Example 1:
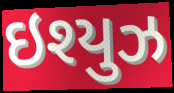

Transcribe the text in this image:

ઇશ્યુઝ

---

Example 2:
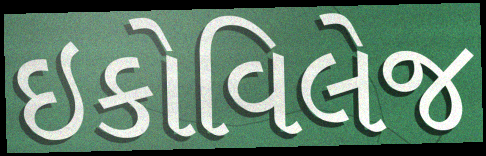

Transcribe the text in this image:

ઇકોવિલેજ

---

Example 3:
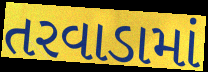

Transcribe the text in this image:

તરવાડામાં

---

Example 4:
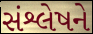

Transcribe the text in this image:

સંશ્લેષને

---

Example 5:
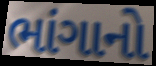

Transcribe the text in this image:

ભાંગાનો